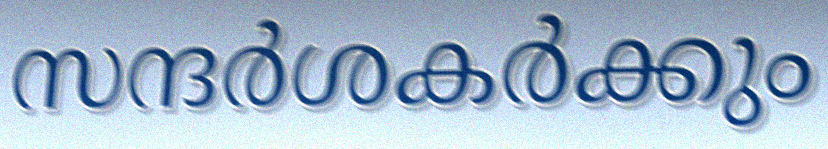
സന്ദർശകർക്കും